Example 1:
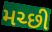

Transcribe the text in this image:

મચ્છી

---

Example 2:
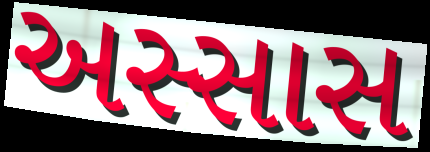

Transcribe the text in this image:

અસ્સાસ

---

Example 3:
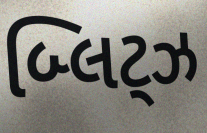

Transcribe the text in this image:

બ્લિટ્ઝ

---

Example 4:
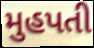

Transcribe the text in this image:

મુહપતી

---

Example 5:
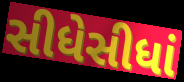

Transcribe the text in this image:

સીધેસીધાં